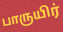
பாருயிர்